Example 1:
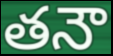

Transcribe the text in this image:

తనౌ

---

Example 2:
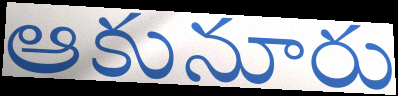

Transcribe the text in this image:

ఆకునూరు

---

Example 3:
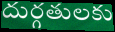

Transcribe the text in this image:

దుర్గతులకు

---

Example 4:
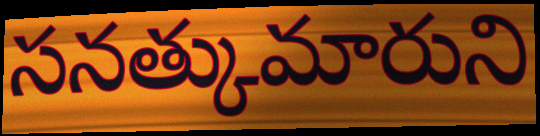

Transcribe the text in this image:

సనత్కుమారుని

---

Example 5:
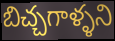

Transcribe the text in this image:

బిచ్చగాళ్ళని